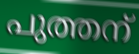
പുത്തന്